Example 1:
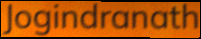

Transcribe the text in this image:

Jogindranath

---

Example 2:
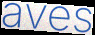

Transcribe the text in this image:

aves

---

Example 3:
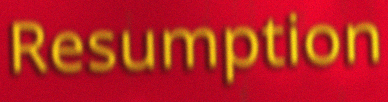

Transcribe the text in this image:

Resumption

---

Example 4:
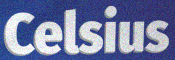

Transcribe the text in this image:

Celsius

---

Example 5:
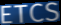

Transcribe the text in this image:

ETCS